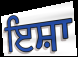
ਇਸ਼ਾ